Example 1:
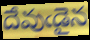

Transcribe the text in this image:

దేవుఁడైన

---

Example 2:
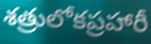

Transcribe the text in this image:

శత్రులోకప్రహారీ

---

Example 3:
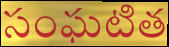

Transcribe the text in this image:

సంఘటిత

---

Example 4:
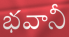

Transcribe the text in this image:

భవానీ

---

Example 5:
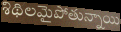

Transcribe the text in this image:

శిథిలమైపోతున్నాయి